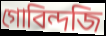
গোবিন্দজি